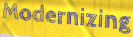
Modernizing